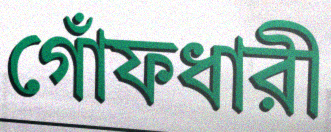
গোঁফধারী